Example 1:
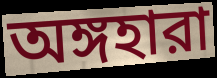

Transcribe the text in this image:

অঙ্গহারা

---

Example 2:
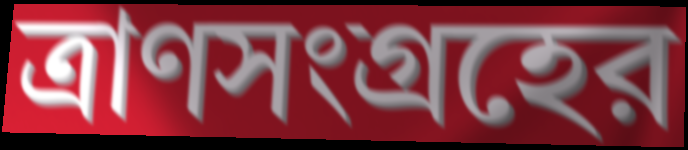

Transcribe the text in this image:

ত্রাণসংগ্রহের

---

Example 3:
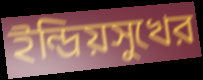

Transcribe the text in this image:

ইন্দ্রিয়সুখের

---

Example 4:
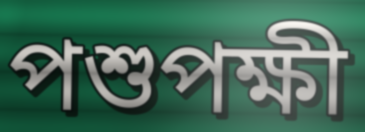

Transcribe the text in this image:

পশুপক্ষী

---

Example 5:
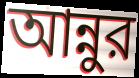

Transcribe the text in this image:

আন্নুর